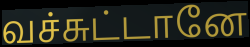
வச்சுட்டானே